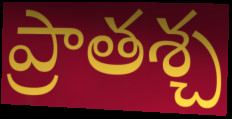
ప్రాతశ్చ